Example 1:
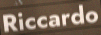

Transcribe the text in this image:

Riccardo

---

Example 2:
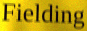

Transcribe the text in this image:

Fielding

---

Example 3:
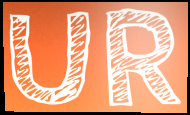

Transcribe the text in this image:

UR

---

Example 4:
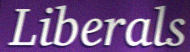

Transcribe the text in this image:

Liberals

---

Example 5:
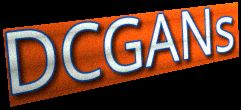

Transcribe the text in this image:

DCGANs